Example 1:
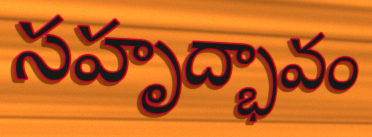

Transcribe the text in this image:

సహృద్భావం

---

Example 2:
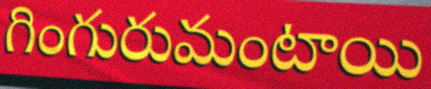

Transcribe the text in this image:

గింగురుమంటాయి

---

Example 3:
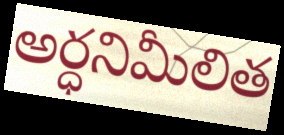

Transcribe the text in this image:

అర్ధనిమీలిత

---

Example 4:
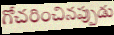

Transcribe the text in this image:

గోచరించినప్పుడు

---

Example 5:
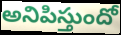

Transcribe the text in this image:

అనిపిస్తుందో